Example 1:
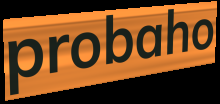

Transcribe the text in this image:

probaho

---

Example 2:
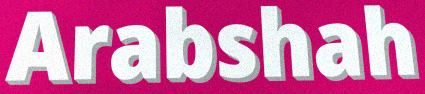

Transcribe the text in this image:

Arabshah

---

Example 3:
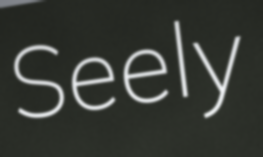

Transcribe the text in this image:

Seely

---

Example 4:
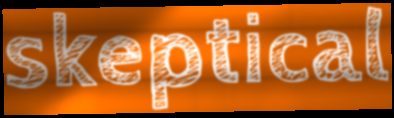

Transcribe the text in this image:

skeptical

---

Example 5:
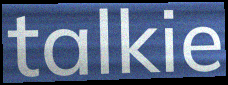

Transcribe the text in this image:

talkie